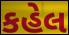
કહેલ